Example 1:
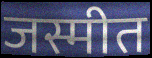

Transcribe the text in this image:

जस्मीत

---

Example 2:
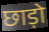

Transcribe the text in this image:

छाड़ो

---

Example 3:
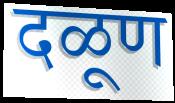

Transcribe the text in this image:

दळूण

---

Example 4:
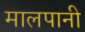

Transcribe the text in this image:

मालपानी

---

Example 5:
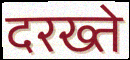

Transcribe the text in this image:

दरख्ते